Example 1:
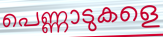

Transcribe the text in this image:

പെണ്ണാടുകളെ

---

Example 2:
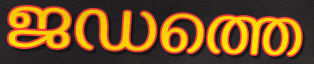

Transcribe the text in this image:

ജഡത്തെ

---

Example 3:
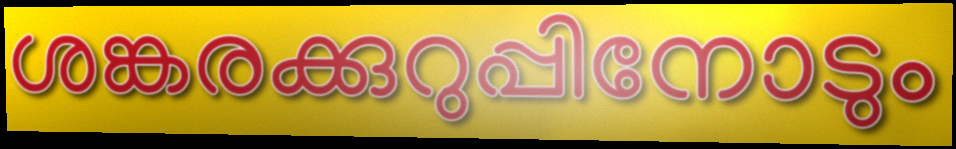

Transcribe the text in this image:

ശങ്കരക്കുറുപ്പിനോടും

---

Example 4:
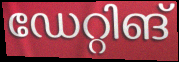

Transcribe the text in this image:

ഡേറ്റിങ്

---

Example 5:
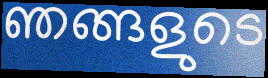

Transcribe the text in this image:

ഞങ്ങളുടെ